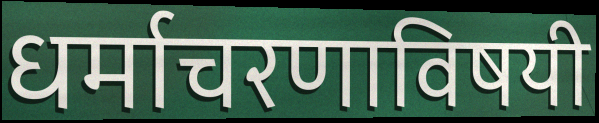
धर्माचरणाविषयी